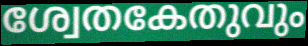
ശ്വേതകേതുവും